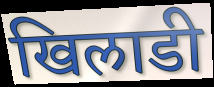
खिलाडी